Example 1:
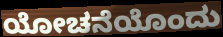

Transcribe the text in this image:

ಯೋಚನೆಯೊಂದು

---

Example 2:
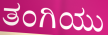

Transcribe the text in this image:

ತಂಗಿಯು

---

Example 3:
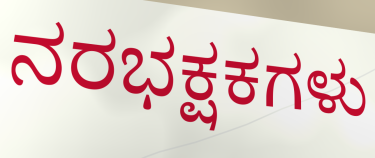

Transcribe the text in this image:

ನರಭಕ್ಷಕಗಳು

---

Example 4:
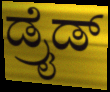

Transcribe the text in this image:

ಡ್ರೈಡ್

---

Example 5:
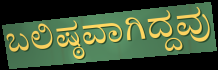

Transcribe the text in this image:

ಬಲಿಷ್ಠವಾಗಿದ್ದವು